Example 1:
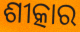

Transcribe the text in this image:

ଶୀତ୍କାର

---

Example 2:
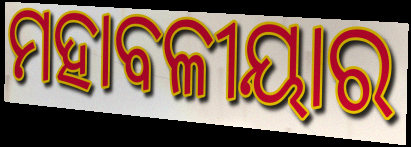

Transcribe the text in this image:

ମହାବଳୀୟାର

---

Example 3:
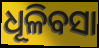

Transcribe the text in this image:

ଧୂଳିବସା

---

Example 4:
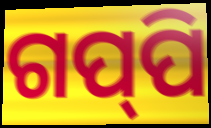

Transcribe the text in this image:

ଗପ୍‌ପି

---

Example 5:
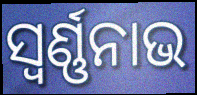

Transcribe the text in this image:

ସ୍ବର୍ଣ୍ଣନାଭ